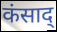
कंसाद्